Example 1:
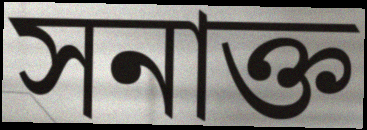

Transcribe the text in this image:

সনাক্ত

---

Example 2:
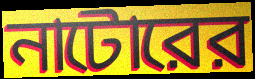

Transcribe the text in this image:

নাটোরের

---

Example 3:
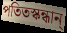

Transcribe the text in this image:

পতিতস্কন্ধান্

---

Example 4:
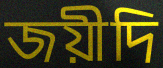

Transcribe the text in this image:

জয়ীদি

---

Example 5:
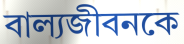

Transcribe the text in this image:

বাল্যজীবনকে